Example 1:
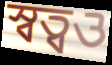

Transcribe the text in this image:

স্বত্বও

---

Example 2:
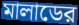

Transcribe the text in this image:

মালাডের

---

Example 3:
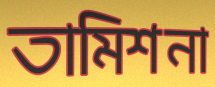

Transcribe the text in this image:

তামিশনা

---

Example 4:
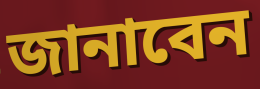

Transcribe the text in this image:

জানাবেন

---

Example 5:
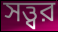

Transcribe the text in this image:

সত্ত্বর